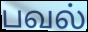
பவல்